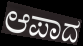
ಆಪಾದ